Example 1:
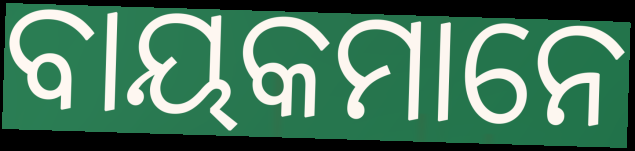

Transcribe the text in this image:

ବାୟକମାନେ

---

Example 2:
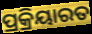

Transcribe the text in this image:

ପ୍ରକ୍ରିୟାରତ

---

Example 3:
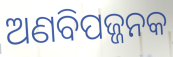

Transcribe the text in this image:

ଅଣବିପଜ୍ଜନକ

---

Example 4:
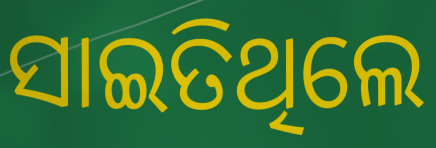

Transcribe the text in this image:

ସାଇତିଥିଲେ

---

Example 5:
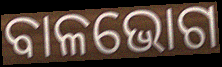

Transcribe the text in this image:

ବାଳଭୋଗ